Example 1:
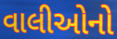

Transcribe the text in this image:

વાલીઓનો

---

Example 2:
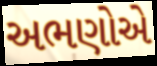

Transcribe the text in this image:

અભણોએ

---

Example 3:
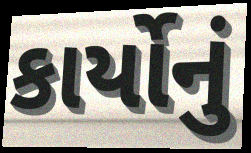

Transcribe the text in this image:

કાર્યોનું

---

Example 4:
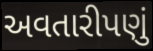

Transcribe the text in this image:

અવતારીપણું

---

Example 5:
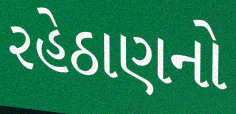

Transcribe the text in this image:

રહેઠાણનો